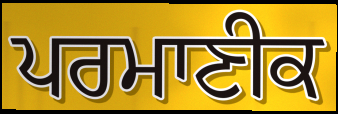
ਪਰਮਾਣੀਕ